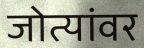
जोत्यांवर